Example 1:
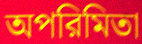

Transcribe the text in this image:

অপরিমিতা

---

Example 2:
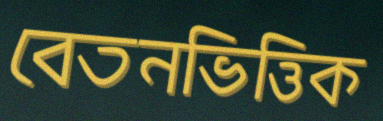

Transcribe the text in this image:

বেতনভিত্তিক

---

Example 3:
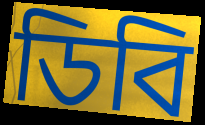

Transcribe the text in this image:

ডিবি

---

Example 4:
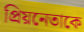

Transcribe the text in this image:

প্রিয়নেতাকে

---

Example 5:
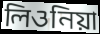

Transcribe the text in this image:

লিওনিয়া